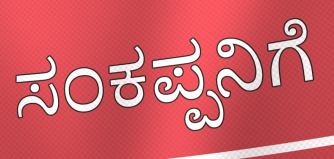
ಸಂಕಪ್ಪನಿಗೆ